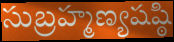
సుబ్రహ్మణ్యషష్ఠి